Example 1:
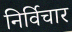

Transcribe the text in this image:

निर्विचार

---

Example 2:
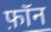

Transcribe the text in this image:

फ़ॉन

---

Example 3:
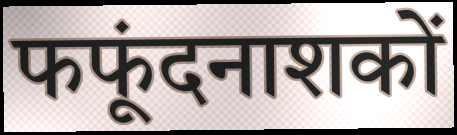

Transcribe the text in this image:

फफूंदनाशकों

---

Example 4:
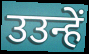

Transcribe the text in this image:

उउन्हें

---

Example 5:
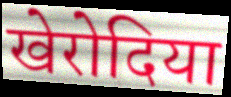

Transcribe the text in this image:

खेरोदिया